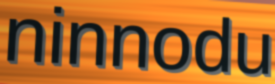
ninnodu